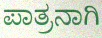
ಪಾತ್ರನಾಗಿ